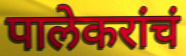
पालेकरांचं